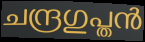
ചന്ദ്രഗുപ്തൻ